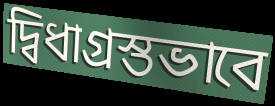
দ্বিধাগ্রস্তভাবে